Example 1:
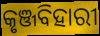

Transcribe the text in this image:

କୃଞ୍ଜବିହାରୀ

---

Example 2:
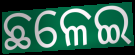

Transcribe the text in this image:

ଛଳେଇ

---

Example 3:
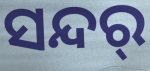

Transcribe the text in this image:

ସନ୍ଦର୍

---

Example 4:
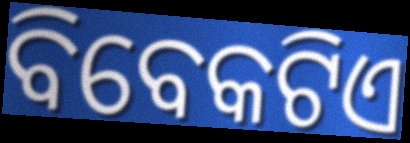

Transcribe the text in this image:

ବିବେକଟିଏ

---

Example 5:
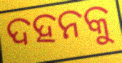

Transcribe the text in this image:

ଦହନକୁ